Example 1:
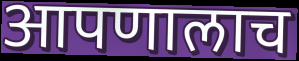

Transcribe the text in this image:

आपणालाच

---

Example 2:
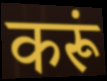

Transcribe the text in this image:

करूं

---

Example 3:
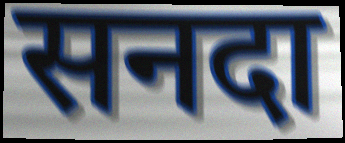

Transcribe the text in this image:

सनदा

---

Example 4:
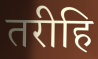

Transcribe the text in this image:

तरीहि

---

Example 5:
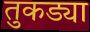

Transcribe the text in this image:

तुकड्या